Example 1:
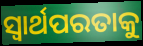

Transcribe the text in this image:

ସ୍ଵାର୍ଥପରତାକୁ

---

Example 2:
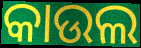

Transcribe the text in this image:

କାଉଲ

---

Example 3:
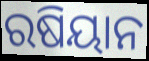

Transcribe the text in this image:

ରଷିୟାନ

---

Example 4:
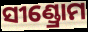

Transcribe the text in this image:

ସୀଣ୍ଡ୍ରୋମ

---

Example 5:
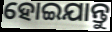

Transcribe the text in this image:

ହୋଇଯାନ୍ତୁ